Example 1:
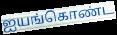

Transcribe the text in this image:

ஐயங்கொண்ட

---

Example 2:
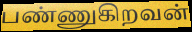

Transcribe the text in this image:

பண்ணுகிறவன்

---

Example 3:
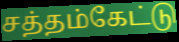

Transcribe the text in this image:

சத்தம்கேட்டு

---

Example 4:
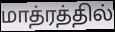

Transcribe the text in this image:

மாத்ரத்தில்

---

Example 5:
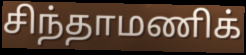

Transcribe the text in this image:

சிந்தாமணிக்